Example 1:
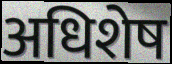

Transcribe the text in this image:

अधिशेष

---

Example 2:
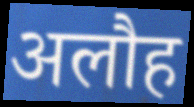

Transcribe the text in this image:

अलौह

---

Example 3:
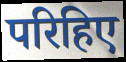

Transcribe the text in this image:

परिहिए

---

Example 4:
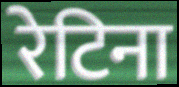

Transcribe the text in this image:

रेटिना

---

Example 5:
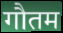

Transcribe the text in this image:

गौतम